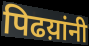
पिढय़ांनी